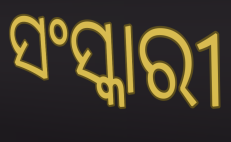
ସଂସ୍କାରୀ